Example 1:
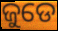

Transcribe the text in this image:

ଜୁଡେ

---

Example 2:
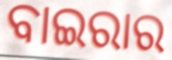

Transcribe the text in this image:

ବାଇରାର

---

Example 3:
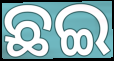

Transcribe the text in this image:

ଛଇ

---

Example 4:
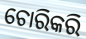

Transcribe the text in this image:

ଚୋରିକରି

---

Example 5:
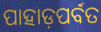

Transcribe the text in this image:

ପାହାଡ଼ପର୍ବତ